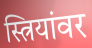
स्त्रियांवर